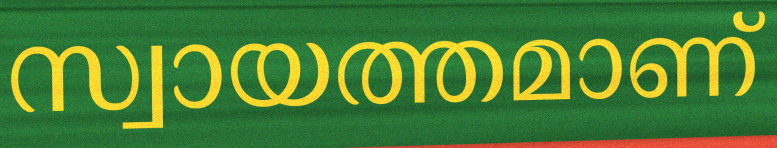
സ്വായത്തമാണ്